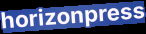
horizonpress